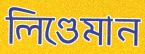
লিণ্ডেমান